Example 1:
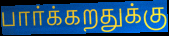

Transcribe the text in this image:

பார்க்கறதுக்கு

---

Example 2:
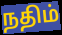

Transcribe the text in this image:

நதிம்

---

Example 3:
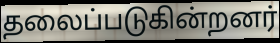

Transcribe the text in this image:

தலைப்படுகின்றனர்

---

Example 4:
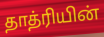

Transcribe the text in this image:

தாத்ரியின்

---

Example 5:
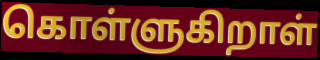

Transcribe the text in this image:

கொள்ளுகிறாள்